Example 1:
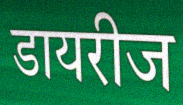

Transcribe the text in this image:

डायरीज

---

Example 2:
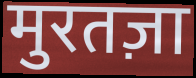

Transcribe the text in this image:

मुरतज़ा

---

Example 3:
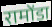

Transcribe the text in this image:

रामोंडा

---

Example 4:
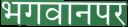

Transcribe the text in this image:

भगवानपर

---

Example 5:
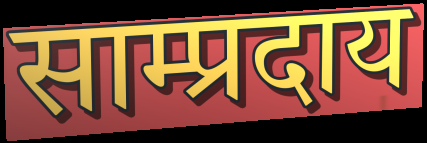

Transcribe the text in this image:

साम्प्रदाय